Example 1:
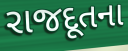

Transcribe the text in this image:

રાજદૂતના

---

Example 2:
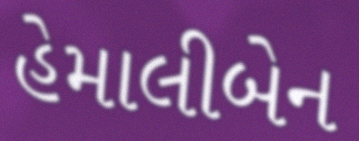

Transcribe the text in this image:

હેમાલીબેન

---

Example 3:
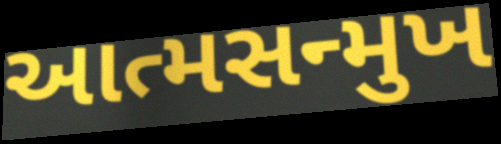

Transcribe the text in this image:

આત્મસન્મુખ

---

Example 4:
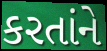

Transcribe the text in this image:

કરતાંને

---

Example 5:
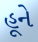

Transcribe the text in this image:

હૂને